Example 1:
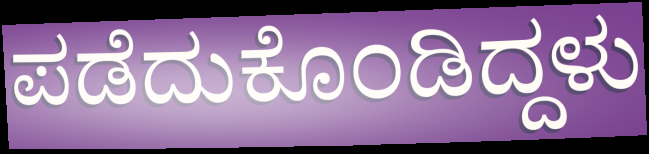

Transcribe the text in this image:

ಪಡೆದುಕೊಂಡಿದ್ದಳು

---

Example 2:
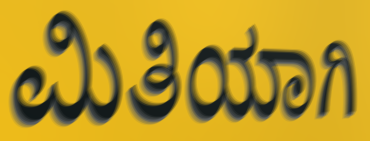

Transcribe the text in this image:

ಮಿತಿಯಾಗಿ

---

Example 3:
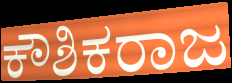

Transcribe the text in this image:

ಕೌಶಿಕರಾಜ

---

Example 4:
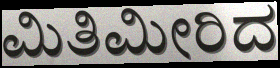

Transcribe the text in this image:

ಮಿತಿಮೀರಿದ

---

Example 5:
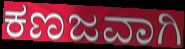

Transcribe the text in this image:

ಕಣಜವಾಗಿ